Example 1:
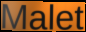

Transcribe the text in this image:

Malet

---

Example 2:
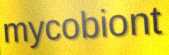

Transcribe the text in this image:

mycobiont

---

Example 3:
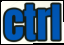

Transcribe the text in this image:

ctrl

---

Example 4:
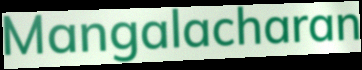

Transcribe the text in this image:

Mangalacharan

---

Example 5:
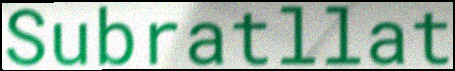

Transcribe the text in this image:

Subratllat